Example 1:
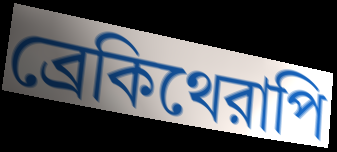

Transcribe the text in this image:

ব্রেকিথেরাপি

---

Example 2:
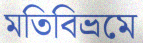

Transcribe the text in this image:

মতিবিভ্রমে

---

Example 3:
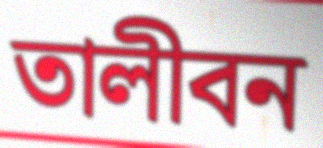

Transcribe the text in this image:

তালীবন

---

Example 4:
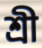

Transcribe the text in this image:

শ্রী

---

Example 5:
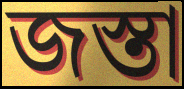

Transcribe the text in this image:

জস্তা